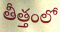
తీత్తంలో